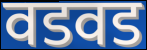
वडवड